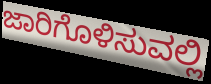
ಜಾರಿಗೊಳಿಸುವಲ್ಲಿ